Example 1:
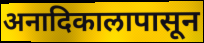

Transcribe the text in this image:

अनादिकालापासून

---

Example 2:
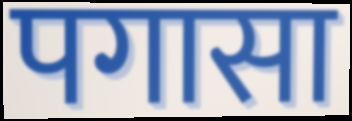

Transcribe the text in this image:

पगासा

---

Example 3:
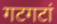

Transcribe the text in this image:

गटगटां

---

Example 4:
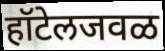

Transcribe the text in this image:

हॉटेलजवळ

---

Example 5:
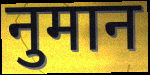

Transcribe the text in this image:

नुमान